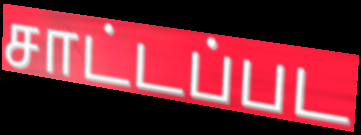
சாட்டப்பட